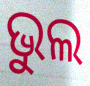
ଭୁଲ